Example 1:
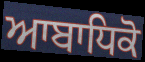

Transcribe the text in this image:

ਆਬਾਧਿਕੋ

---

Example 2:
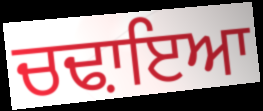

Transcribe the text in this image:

ਚਢ਼ਾਇਆ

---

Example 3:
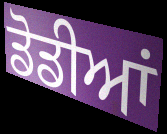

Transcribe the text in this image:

ਡੋਡੀਆਂ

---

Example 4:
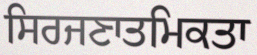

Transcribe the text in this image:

ਸਿਰਜਣਾਤਮਿਕਤਾ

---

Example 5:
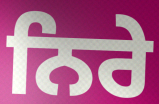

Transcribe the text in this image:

ਨਿਰੇ